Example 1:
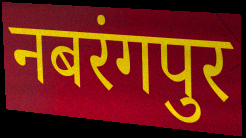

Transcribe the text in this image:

नबरंगपुर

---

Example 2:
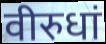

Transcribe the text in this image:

वीरुधां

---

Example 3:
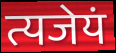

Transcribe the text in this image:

त्यजेयं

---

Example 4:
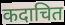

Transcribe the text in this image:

कदाचित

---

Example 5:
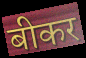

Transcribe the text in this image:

बीकर